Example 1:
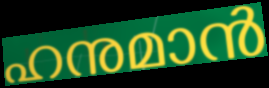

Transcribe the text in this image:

ഹനുമാൻ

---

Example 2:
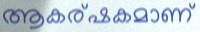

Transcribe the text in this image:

ആകര്ഷകമാണ്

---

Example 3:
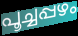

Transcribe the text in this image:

പൂച്ചപ്പഴം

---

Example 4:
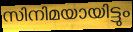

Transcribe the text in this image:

സിനിമയായിട്ടും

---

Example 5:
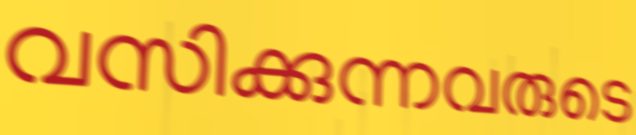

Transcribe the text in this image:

വസിക്കുന്നവരുടെ